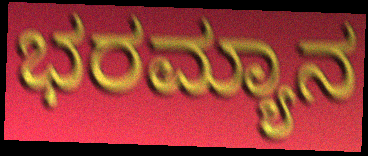
ಭರಮ್ಯಾನ